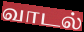
வாடல்